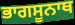
ਭਾਗਸੂਨਾਥ